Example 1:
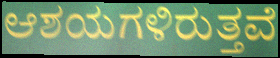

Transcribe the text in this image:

ಆಶಯಗಳಿರುತ್ತವೆ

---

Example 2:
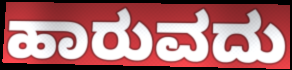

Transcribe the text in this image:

ಹಾರುವದು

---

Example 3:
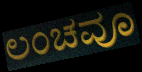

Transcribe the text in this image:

ಲಂಚವೂ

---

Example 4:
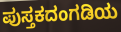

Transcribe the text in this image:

ಪುಸ್ತಕದಂಗಡಿಯ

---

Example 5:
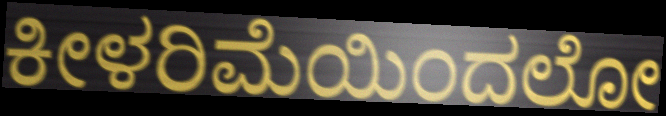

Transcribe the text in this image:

ಕೀಳರಿಮೆಯಿಂದಲೋ